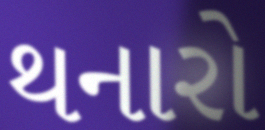
થનારો